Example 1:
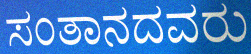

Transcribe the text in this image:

ಸಂತಾನದವರು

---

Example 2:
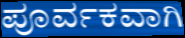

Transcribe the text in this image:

ಪೂರ್ವಕವಾಗಿ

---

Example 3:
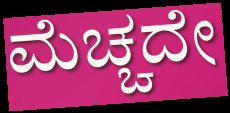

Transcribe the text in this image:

ಮೆಚ್ಚದೇ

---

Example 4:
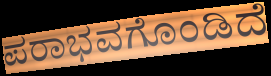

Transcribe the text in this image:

ಪರಾಭವಗೊಂಡಿದೆ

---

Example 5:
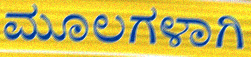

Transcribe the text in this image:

ಮೂಲಗಳಾಗಿ